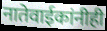
नातेवाईकांनीही